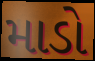
માડો